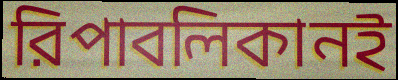
রিপাবলিকানই